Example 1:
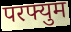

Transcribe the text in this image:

परफ्युम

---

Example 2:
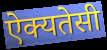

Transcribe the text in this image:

ऐक्यतेसी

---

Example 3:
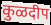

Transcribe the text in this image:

कुळदीप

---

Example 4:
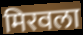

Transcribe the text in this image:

मिरवला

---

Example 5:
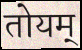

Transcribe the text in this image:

तोयम्